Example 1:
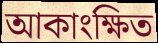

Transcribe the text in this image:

আকাংক্ষিত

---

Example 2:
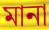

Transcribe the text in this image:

মানা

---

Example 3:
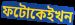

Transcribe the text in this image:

ফটোকেইখন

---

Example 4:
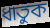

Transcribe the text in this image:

ধাতুক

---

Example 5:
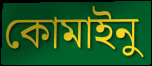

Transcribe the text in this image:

কোমাইনু